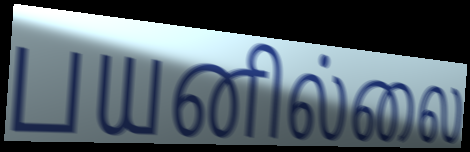
பயனில்லை